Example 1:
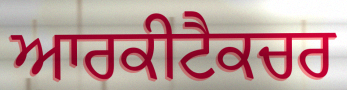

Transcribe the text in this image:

ਆਰਕੀਟੈਕਚਰ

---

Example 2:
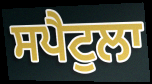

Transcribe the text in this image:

ਸਪੈਟੁਲਾ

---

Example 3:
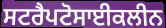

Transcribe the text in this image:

ਸਟਰੈਪਟੋਸਾਈਕਲੀਨ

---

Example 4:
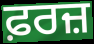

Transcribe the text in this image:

ਫ਼ਰਜ਼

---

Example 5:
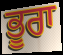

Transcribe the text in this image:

ਭੂਰਾ